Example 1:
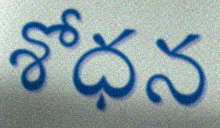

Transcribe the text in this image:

శోధన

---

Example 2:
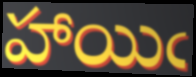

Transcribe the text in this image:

హాయిఁ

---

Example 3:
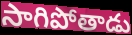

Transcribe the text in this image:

సాగిపోతాడు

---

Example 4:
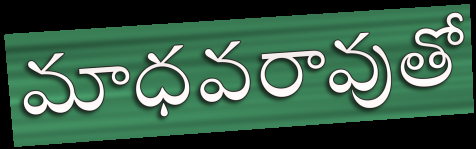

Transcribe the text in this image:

మాధవరావుతో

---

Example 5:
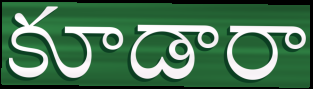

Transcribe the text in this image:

కూడారా